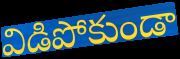
విడిపోకుండా